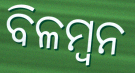
ବିଳମ୍ବନ